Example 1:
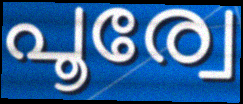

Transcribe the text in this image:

പൂര്വേ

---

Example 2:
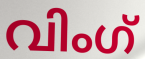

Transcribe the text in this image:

വിംഗ്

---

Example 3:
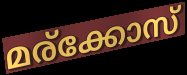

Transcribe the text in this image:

മര്ക്കോസ്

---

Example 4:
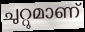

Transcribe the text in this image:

ചുറ്റുമാണ്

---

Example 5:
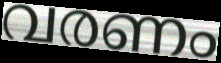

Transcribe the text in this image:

വരണം